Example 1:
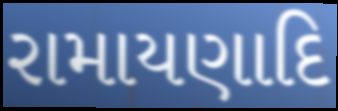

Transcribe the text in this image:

રામાયણાદિ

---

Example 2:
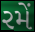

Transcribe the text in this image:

રમેં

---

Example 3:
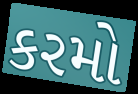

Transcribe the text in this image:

કરમો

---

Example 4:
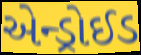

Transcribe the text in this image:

એન્ડ્રોઈડ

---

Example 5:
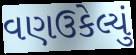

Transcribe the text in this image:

વણઉકેલ્યું